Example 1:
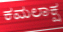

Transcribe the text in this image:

ಕಮಲಾಕ್ಷ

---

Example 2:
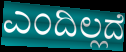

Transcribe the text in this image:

ಎಂದಿಲ್ಲದೆ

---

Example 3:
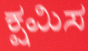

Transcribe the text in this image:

ಕ್ಷಮಿಸ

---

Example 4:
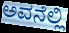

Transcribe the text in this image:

ಅವನೆಲ್ಲಿ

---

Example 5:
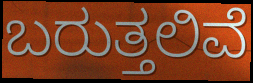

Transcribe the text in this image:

ಬರುತ್ತಲಿವೆ